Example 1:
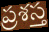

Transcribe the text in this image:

ప్రశస్త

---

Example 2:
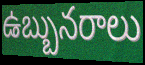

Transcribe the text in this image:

ఉబ్బునరాలు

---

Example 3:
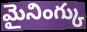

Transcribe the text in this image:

మైనింగ్కు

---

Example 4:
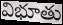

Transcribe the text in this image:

విభూతు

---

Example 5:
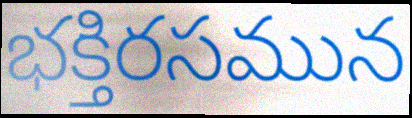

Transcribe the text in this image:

భక్తిరసమున